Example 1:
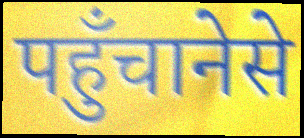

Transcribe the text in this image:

पहुँचानेसे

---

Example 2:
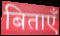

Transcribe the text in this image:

बिताएँ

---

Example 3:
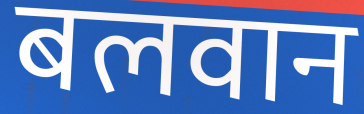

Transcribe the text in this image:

बलवान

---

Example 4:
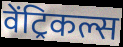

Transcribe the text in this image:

वेंट्रिकल्स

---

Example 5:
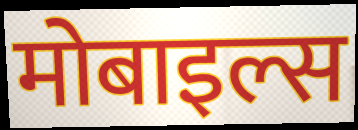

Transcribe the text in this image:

मोबाइल्स